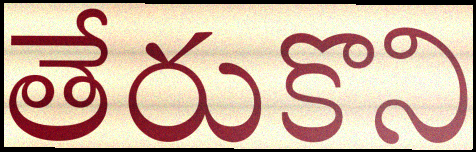
తేరుకొని